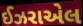
ઈઝરાએલ